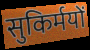
सुकिर्मयों